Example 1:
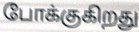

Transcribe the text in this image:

போக்குகிறது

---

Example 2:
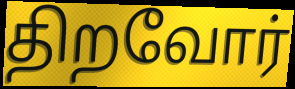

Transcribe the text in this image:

திறவோர்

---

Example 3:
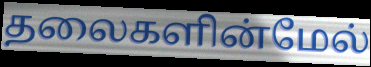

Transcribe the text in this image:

தலைகளின்மேல்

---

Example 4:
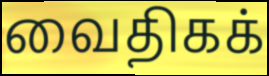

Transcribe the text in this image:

வைதிகக்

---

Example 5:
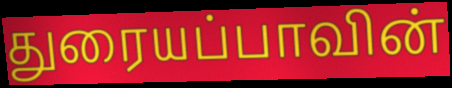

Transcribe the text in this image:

துரையப்பாவின்